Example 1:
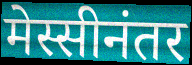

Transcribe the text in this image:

मेस्सीनंतर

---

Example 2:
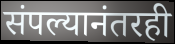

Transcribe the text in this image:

संपल्यानंतरही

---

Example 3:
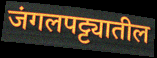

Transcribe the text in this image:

जंगलपट्ट्यातील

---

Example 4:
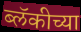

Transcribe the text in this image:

ब्लॅकीच्या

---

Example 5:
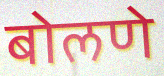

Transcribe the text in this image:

बोलणे